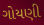
ગોયણી